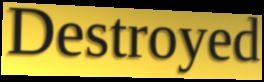
Destroyed